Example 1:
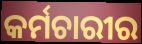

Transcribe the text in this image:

କର୍ମଚାରୀର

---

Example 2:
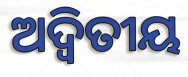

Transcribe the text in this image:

ଅଦ୍ଵିତୀୟ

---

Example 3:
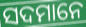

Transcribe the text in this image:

ସଦମାନେ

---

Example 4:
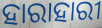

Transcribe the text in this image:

ହାରାହାରୀ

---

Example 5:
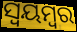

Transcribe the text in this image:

ସ୍ଵୟମ୍ବର